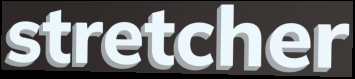
stretcher